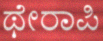
ಥೇರಾಪಿ